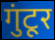
गुंटूर